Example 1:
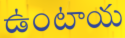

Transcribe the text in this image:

ఉంటాయ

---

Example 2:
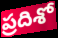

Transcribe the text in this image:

ప్రదిశో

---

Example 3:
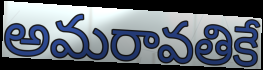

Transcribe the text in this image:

అమరావతికే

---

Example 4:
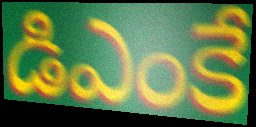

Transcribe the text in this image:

డిఎంకే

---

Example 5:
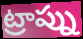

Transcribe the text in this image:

ట్రాప్ను